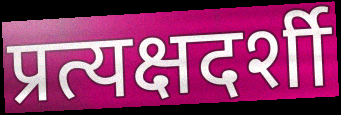
प्रत्यक्षदर्शी